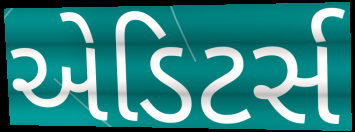
એડિટર્સ